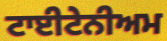
ਟਾਈਟੇਨੀਅਮ